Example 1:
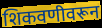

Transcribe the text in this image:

शिकवणीवरून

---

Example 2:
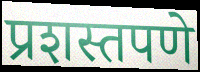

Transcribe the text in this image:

प्रशस्तपणे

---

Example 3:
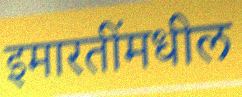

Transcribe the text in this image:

इमारतींमधील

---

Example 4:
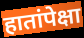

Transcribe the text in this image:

हातांपेक्षा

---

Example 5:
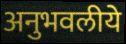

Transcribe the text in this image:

अनुभवलीये